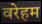
वरेहम